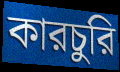
কারচুরি